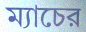
ম্যাচের